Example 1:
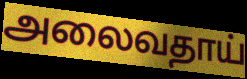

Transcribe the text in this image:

அலைவதாய்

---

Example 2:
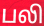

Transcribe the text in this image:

பலி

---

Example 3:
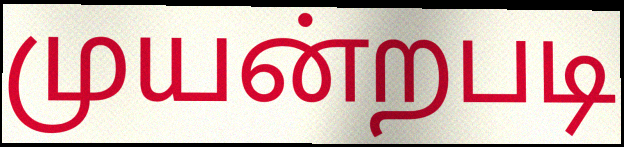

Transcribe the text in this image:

முயன்றபடி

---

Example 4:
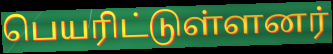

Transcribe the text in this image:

பெயரிட்டுள்ளனர்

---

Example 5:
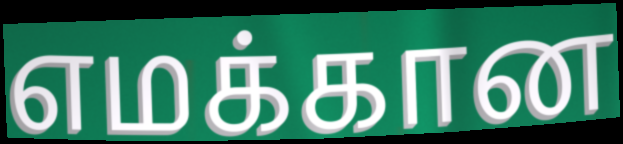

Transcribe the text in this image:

எமக்கான